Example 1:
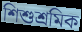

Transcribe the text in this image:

শিশুশ্ৰমিক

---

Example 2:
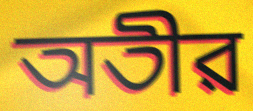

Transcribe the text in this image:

অতীৱ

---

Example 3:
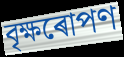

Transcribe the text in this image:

বৃক্ষৰোপণ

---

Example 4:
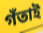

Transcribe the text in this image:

গঁতাই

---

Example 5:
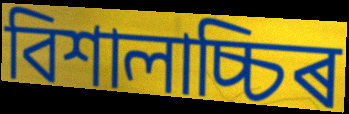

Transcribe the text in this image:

বিশালাচ্চিৰ